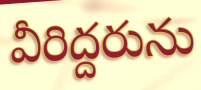
వీరిద్దరును